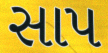
સાપ